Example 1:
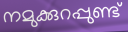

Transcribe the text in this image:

നമുക്കുറപ്പുണ്ട്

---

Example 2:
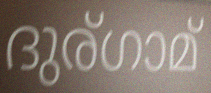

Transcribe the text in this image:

ദുര്ഗാമ്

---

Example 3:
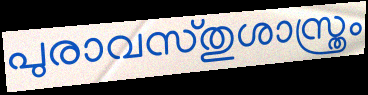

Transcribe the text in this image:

പുരാവസ്തുശാസ്ത്രം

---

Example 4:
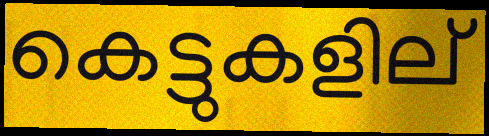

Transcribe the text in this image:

കെട്ടുകളില്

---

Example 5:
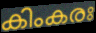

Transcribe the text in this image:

കിംകരഃ